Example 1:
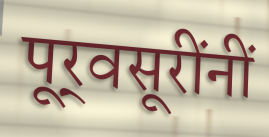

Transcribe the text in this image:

पूर्वसूरींनीं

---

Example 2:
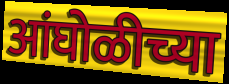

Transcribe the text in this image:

आंघोळीच्या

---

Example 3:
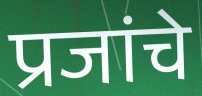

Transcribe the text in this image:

प्रजांचे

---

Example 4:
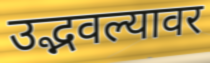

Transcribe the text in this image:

उद्भवल्यावर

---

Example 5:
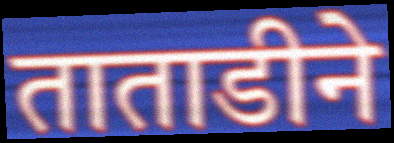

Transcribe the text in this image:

ताताडीने